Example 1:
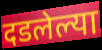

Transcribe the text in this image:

दडलेल्या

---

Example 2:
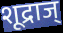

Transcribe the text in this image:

शूद्राज्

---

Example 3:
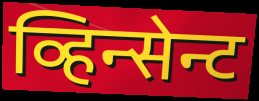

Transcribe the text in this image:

व्हिन्सेन्ट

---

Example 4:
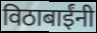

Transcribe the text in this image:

विठाबाईंनी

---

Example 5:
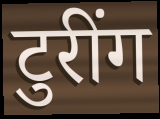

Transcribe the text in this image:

टुरींग